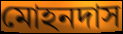
মোহনদাস